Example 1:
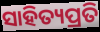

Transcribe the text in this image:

ସାହିତ୍ୟପ୍ରତି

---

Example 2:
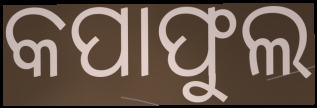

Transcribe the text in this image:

କପାଫୁଲ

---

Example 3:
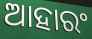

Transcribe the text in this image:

ଆହାରଂ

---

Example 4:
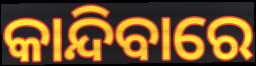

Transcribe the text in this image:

କାନ୍ଦିବାରେ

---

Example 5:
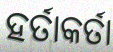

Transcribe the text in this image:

ହର୍ତାକର୍ତା